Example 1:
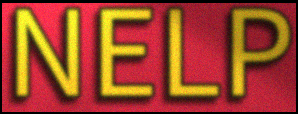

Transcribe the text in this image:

NELP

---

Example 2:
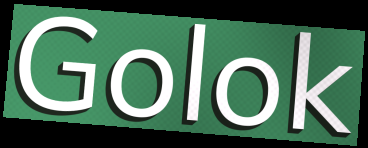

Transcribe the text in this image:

Golok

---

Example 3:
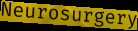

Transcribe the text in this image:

Neurosurgery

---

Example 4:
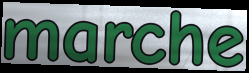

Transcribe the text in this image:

marche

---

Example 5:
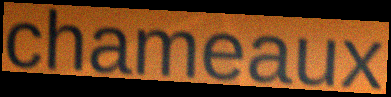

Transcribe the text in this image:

chameaux